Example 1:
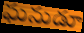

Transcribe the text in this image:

ఘనుడూ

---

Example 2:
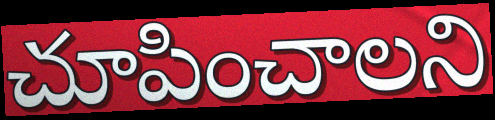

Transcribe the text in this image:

చూపించాలని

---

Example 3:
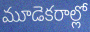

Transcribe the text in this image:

మూడెకరాల్లో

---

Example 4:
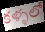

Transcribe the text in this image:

కళ్ళలో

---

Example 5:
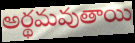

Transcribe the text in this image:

అర్థమవుతాయి